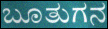
ಬೂತುಗನ